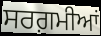
ਸਰਗ਼ਮੀਆਂ